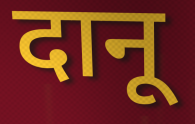
दानू